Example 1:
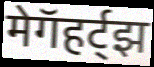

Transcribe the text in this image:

मेगॅहर्ट्‌झ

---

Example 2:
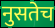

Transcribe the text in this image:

नुसतेच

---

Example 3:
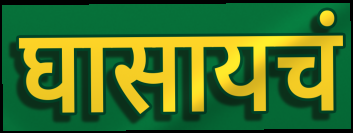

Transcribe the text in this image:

घासायचं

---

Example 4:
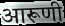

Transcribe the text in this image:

आरूणी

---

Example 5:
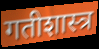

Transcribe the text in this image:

गतीशास्त्र